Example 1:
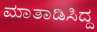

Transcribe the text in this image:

ಮಾತಾಡಿಸಿದ್ದ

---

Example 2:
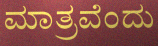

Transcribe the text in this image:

ಮಾತ್ರವೆಂದು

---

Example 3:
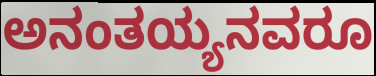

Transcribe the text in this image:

ಅನಂತಯ್ಯನವರೂ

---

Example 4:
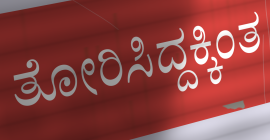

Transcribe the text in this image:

ತೋರಿಸಿದ್ದಕ್ಕಿಂತ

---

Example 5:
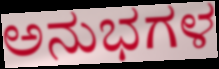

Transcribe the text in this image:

ಅನುಭಗಳ